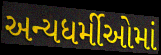
અન્યધર્મીઓમાં